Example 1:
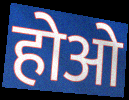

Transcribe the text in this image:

होओ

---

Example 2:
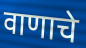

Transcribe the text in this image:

वाणाचे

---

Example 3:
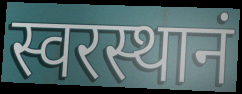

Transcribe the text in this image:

स्वरस्थानं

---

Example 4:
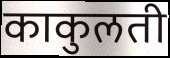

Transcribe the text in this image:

काकुलती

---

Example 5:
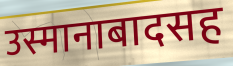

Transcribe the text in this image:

उस्मानाबादसह